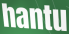
hantu